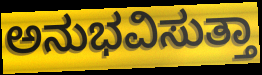
ಅನುಭವಿಸುತ್ತಾ